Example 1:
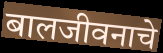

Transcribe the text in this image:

बालजीवनाचे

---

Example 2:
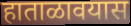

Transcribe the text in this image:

हाताळावयास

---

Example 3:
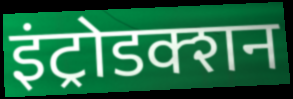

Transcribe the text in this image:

इंट्रोडक्शन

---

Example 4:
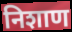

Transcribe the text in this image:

निशाण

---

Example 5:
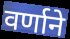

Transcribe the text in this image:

वर्णाने